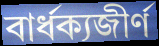
বার্ধক্যজীর্ণ